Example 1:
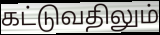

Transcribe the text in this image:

கட்டுவதிலும்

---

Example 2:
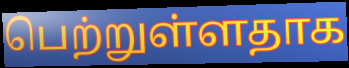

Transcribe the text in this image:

பெற்றுள்ளதாக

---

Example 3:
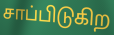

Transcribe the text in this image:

சாப்பிடுகிற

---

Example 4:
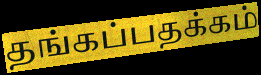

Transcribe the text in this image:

தங்கப்பதக்கம்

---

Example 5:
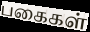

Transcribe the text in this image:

பகைகள்